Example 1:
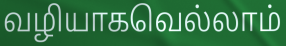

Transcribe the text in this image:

வழியாகவெல்லாம்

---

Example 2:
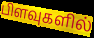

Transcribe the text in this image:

பிளவுகளில்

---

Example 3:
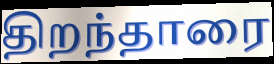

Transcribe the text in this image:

திறந்தாரை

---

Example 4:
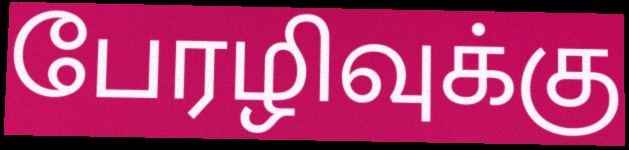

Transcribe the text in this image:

பேரழிவுக்கு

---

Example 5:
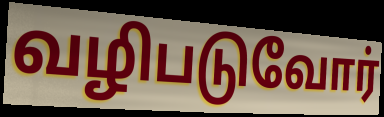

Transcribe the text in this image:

வழிபடுவோர்